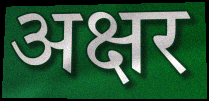
अक्षर